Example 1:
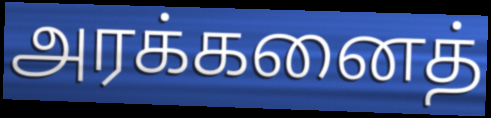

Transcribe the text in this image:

அரக்கனைத்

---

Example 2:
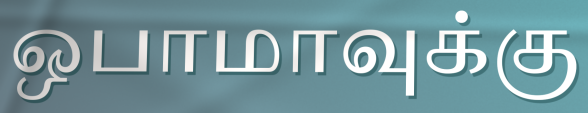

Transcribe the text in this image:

ஒபாமாவுக்கு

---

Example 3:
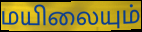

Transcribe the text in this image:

மயிலையும்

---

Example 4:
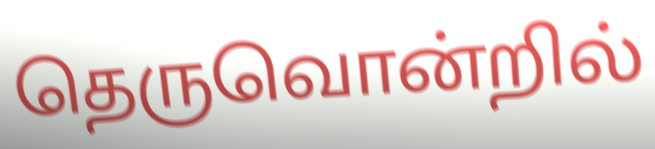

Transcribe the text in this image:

தெருவொன்றில்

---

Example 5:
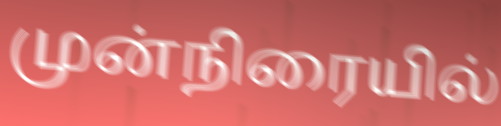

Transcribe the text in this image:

முன்நிரையில்